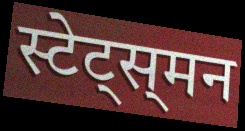
स्टेट्स्‌मन